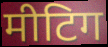
मीटिग